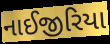
નાઈજીરિયા